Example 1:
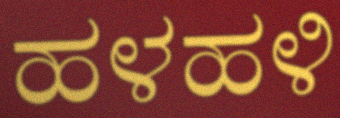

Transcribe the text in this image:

ಹಳಹಳಿ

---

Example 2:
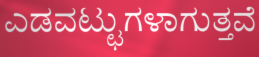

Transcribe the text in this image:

ಎಡವಟ್ಟುಗಳಾಗುತ್ತವೆ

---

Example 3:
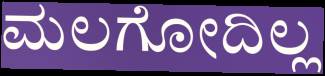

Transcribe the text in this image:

ಮಲಗೋದಿಲ್ಲ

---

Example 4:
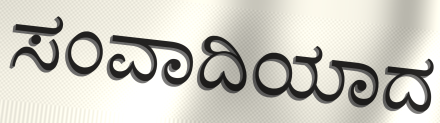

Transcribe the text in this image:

ಸಂವಾದಿಯಾದ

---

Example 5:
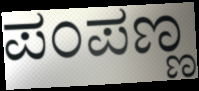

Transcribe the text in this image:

ಪಂಪಣ್ಣ